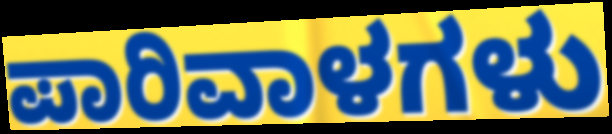
ಪಾರಿವಾಳಗಳು